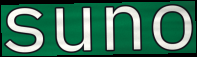
suno